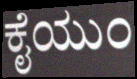
ಕೈಯುಂ